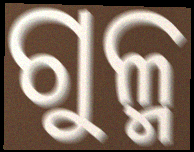
ଗୁଳ୍ମ